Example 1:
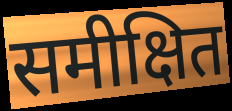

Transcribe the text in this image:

समीक्षित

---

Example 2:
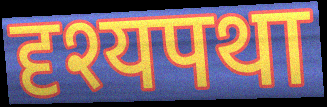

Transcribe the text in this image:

दृश्यपथा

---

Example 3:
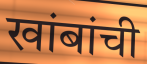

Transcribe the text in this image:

खांबांची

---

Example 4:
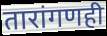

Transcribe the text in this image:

तारांगणही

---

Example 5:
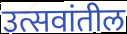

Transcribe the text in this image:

उत्सवांतील